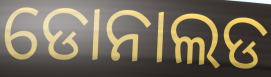
ଡୋନାଲଡ